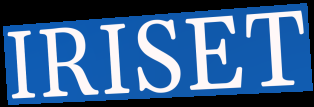
IRISET